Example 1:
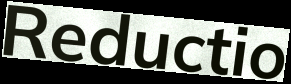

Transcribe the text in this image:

Reductio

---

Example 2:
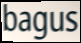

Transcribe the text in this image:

bagus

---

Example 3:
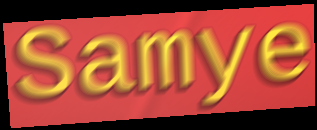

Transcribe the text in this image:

Samye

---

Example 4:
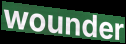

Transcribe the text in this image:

wounder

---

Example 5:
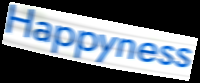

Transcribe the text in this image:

Happyness